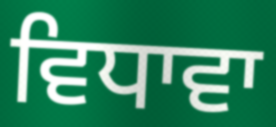
ਵਿਧਾਵਾ